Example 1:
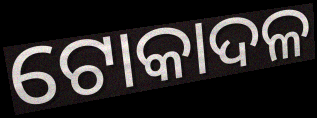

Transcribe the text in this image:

ଟୋକାଦଳ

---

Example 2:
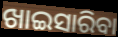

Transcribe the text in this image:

ଖାଇସାରିବା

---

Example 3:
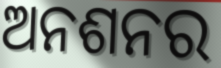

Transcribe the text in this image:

ଅନଶନର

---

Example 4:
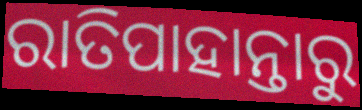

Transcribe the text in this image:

ରାତିପାହାନ୍ତାରୁ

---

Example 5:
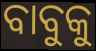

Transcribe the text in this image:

ବାବୁକୁ